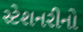
સ્ટેશનરીનો